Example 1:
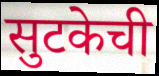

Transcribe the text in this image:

सुटकेची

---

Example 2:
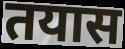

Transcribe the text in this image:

तयास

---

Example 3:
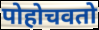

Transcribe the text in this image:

पोहोचवतो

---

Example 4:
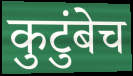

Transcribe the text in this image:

कुटुंबेच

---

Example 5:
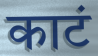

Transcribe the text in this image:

काटं